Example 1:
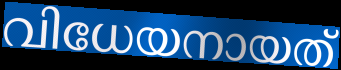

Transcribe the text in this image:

വിധേയനായത്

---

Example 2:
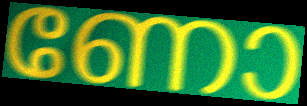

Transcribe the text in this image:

ണോ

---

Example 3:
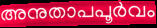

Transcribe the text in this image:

അനുതാപപൂർവം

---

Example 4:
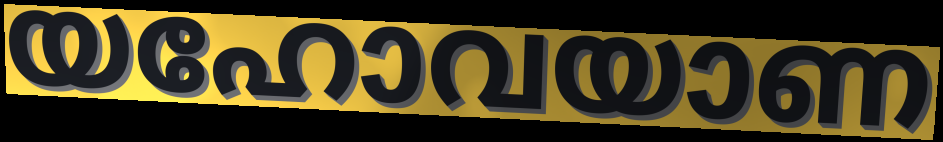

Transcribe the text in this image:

യഹോവയാണ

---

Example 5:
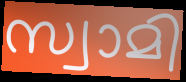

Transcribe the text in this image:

സ്വാമി